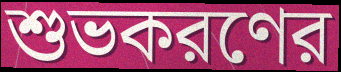
শুভকরণের